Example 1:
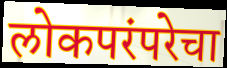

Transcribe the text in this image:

लोकपरंपरेचा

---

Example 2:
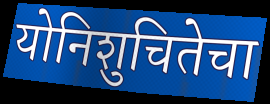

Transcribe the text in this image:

योनिशुचितेचा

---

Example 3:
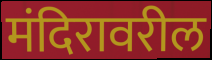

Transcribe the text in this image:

मंदिरावरील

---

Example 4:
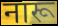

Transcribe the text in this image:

नारू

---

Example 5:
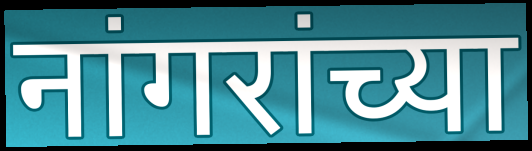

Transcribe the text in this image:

नांगरांच्या